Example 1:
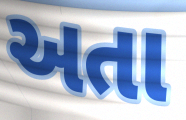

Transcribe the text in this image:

અતા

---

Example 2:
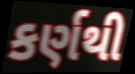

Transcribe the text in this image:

કર્ણથી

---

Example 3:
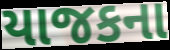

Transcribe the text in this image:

યાજકના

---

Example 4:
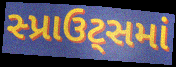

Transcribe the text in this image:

સ્પ્રાઉટ્સમાં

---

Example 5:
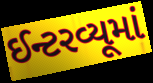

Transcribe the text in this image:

ઈન્ટરવ્યૂમાં